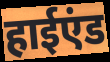
हाईएंड